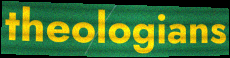
theologians